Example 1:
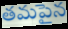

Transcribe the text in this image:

తమపైన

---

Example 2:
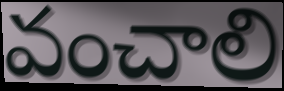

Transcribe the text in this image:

వంచాలి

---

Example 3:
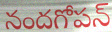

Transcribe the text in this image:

నందగోపన్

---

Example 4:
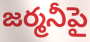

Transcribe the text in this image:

జర్మనీపై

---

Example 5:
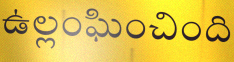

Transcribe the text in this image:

ఉల్లంఘించింది